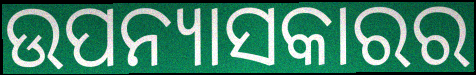
ଉପନ୍ୟାସକାରର